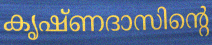
കൃഷ്ണദാസിന്റെ